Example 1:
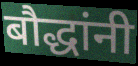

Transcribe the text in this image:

बौद्धांनी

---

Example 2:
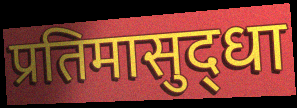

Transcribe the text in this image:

प्रतिमासुद्धा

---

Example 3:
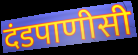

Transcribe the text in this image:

दंडपाणीसी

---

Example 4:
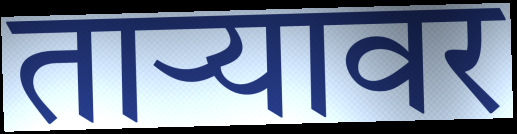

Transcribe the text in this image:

ताऱ्यावर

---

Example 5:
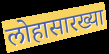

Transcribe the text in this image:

लोहासारख्या